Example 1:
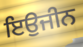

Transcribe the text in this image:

ਇਉਜੀਨ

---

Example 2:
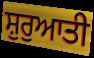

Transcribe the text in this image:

ਸ਼ੁਰੁਆਤੀ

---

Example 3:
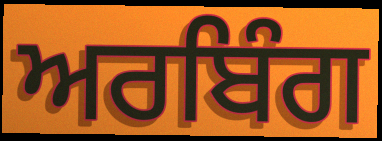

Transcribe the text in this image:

ਅਰਬਿੰਗ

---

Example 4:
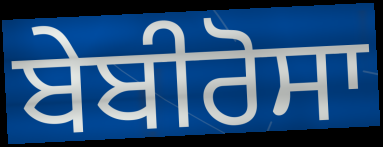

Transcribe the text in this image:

ਬੇਬੀਰੋਸਾ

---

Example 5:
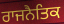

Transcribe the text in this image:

ਰਾਜਨੈਤਿਕ